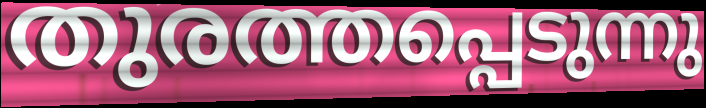
തുരത്തപ്പെടുന്നു